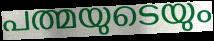
പത്മയുടെയും